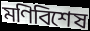
মণিবিশেষ